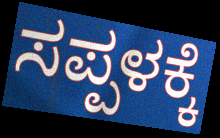
ಸಪ್ಪಳಕ್ಕೆ